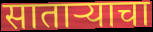
साताऱ्याचा